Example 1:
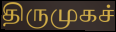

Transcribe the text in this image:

திருமுகச்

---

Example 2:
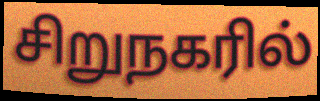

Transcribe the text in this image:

சிறுநகரில்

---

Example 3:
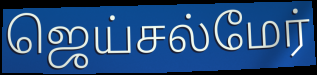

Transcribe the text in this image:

ஜெய்சல்மேர்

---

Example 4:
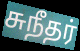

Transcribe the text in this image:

சுநீதர்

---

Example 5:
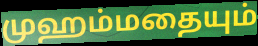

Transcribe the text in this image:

முஹம்மதையும்